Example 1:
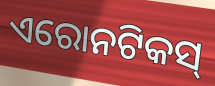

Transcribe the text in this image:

ଏରୋନଟିକସ୍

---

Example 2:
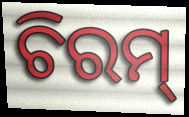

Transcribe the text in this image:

ଚିରମ୍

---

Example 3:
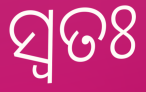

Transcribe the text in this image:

ସ୍ଵତଃ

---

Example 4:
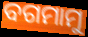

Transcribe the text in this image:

ବଗମାମୁ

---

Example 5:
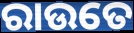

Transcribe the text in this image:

ରାଉତେ